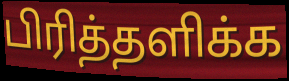
பிரித்தளிக்க